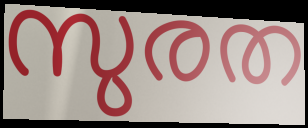
സുരത